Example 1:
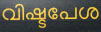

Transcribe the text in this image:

വിഷ്ടപേശ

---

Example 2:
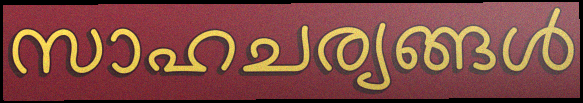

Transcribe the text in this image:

സാഹചര്യങ്ങൾ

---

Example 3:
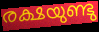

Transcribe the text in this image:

രക്ഷയുണ്ടു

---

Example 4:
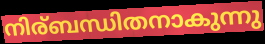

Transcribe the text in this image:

നിര്ബന്ധിതനാകുന്നു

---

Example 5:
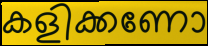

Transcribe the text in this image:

കളിക്കണോ